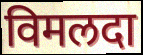
विमलदा